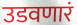
उडवणारं